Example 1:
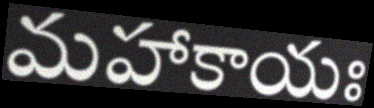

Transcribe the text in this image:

మహాకాయః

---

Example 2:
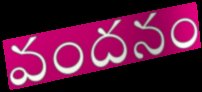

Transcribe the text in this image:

వందనం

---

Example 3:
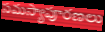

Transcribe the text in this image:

సమస్యాపూరణలు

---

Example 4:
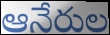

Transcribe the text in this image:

ఆనేరుల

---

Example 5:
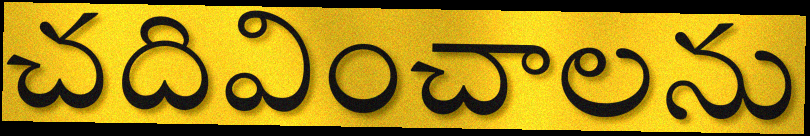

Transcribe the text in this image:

చదివించాలను